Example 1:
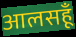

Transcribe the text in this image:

आलसहूँ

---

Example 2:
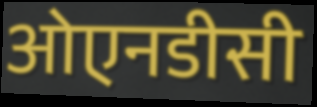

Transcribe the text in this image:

ओएनडीसी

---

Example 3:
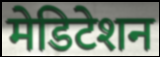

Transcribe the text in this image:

मेडिटेशन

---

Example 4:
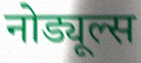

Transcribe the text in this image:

नोड्यूल्स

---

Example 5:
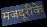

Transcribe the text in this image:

मजदूरीके